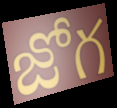
జోగ